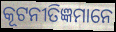
କୂଟନୀତିଜ୍ଞମାନେ